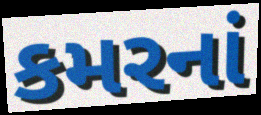
કમરનાં